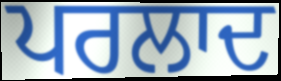
ਪਰਲਾਦ